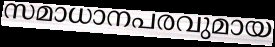
സമാധാനപരവുമായ